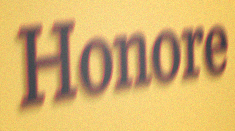
Honore